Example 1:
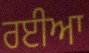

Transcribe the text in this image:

ਰਈਆ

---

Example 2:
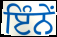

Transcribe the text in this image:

ਇੰਨੇਂ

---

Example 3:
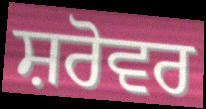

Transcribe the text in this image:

ਸ਼ਰੋਵਰ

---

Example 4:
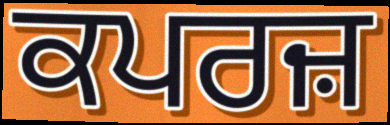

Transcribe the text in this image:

ਕਪਰਜ਼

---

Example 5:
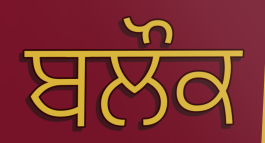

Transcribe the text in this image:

ਬਲੌਕ